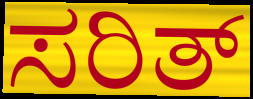
ಸರಿತ್